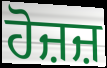
ਹੋਜ਼ਜ਼